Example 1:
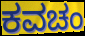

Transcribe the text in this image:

ಕವಚಂ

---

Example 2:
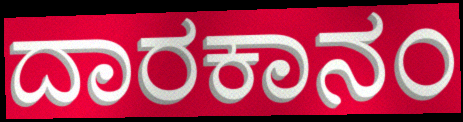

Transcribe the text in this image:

ದಾರಕಾನಂ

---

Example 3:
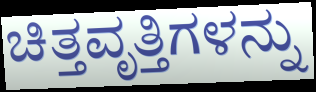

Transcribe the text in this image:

ಚಿತ್ತವೃತ್ತಿಗಳನ್ನು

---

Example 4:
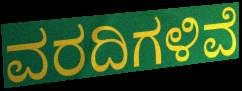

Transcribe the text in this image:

ವರದಿಗಳಿವೆ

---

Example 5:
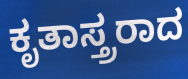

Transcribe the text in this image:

ಕೃತಾಸ್ತ್ರರಾದ